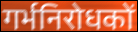
गर्भनिरोधकों